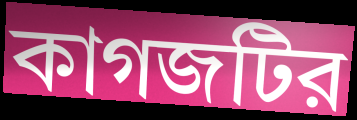
কাগজটির